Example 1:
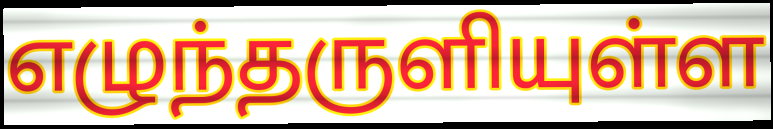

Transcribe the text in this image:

எழுந்தருளியுள்ள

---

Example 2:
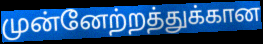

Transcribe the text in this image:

முன்னேற்றத்துக்கான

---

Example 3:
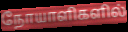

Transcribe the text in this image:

நோயாளிகளில்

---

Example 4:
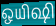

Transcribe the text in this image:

ஒயிஷி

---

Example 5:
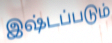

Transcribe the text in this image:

இஷ்டப்படும்